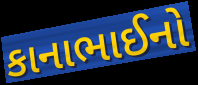
કાનાભાઈનો